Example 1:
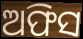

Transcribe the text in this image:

ଅଫିସ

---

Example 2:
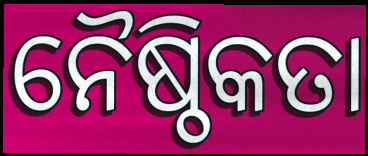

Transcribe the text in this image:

ନୈଷ୍ଠିକତା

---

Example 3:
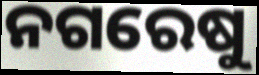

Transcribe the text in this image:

ନଗରେଷୁ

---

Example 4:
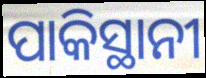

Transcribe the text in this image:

ପାକିସ୍ଥାନୀ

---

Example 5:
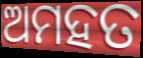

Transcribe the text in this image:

ଅମହତ